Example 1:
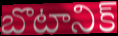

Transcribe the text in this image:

బొటానిక్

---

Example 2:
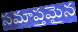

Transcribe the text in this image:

సమాప్తమైన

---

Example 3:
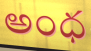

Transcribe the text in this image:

అంధ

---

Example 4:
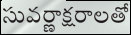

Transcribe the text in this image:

సువర్ణాక్షరాలతో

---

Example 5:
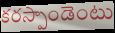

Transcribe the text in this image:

కరస్పాండెంటు